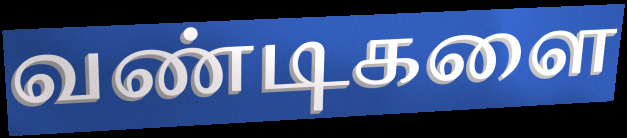
வண்டிகளை